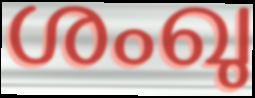
ശംഖു